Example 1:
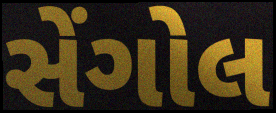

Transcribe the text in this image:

સેંગોલ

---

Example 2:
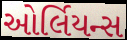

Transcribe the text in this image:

ઓર્લિયન્સ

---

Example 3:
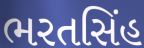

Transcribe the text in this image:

ભરતસિંહ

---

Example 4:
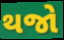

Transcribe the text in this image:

થજો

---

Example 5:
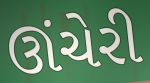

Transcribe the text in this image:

ઊંચેરી